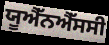
ਯੂਐੱਨਐੱਸਸੀ